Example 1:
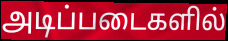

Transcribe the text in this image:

அடிப்படைகளில்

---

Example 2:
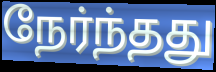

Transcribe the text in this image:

நேர்ந்தது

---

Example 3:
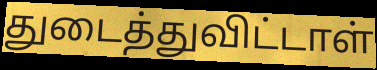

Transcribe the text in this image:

துடைத்துவிட்டாள்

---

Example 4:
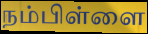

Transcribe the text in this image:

நம்பிள்ளை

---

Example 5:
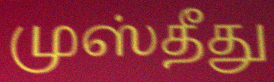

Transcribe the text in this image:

முஸ்தீது